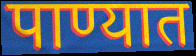
पाण्यात